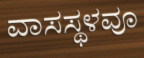
ವಾಸಸ್ಥಳವೂ